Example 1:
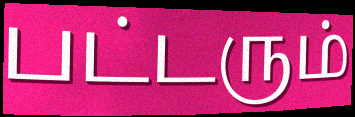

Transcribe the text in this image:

பட்டரும்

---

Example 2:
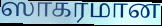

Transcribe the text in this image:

ஸாகரமான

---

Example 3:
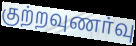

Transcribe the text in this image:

குற்றவுணர்வு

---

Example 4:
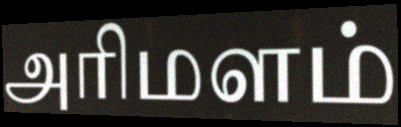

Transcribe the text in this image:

அரிமளம்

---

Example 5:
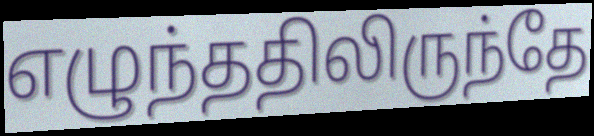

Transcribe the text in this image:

எழுந்ததிலிருந்தே